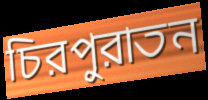
চিরপুরাতন